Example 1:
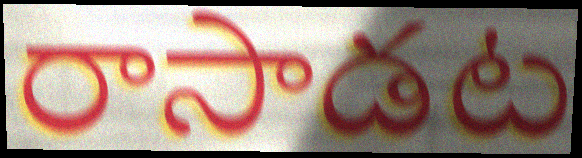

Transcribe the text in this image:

రాసాడట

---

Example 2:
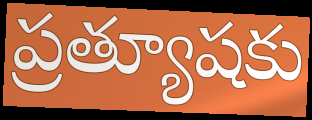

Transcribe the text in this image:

ప్రత్యూషకు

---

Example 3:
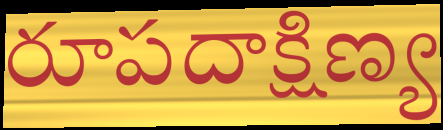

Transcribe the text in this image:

రూపదాక్షిణ్య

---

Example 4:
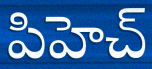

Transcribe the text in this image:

పిహెచ్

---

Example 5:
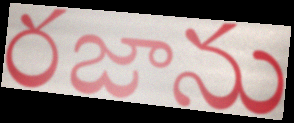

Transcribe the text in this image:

రజాను